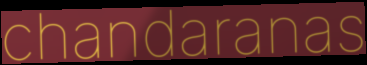
chandaranas